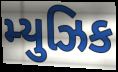
મ્યુઝિક